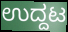
ಉದ್ದಟ